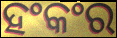
ହଂକଂର